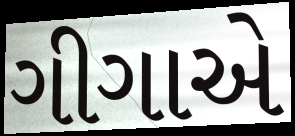
ગીગાએ